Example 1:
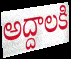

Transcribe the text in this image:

అద్దాలకి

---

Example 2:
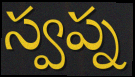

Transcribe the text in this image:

స్వప్న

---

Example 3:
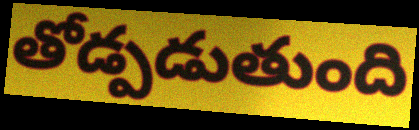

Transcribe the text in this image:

తోడ్పడుతుంది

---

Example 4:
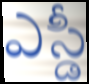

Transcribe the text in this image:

ఎస్డీ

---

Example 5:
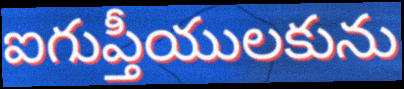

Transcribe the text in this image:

ఐగుప్తీయులకును